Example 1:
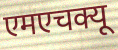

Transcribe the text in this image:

एमएचक्यू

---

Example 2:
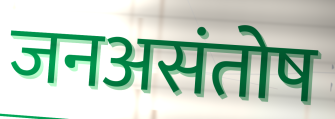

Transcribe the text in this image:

जनअसंतोष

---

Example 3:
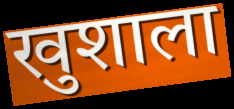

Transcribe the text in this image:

खुशाला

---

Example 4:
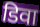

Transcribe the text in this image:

डिवा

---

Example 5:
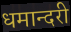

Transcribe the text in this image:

धमान्दरी